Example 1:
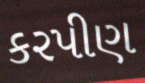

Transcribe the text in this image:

કરપીણ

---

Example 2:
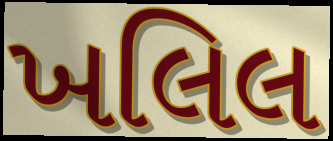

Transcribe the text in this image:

ખલિલ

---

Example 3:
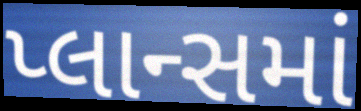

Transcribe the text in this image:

પ્લાન્સમાં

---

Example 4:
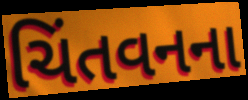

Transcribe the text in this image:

ચિંતવનના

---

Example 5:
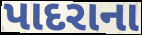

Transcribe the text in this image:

પાદરાના